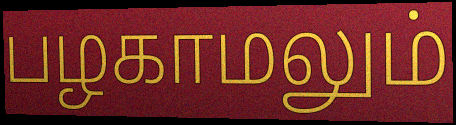
பழகாமலும்